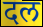
दल